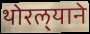
थोरल्याने